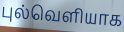
புல்வெளியாக